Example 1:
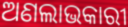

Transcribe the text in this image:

ଅଣଲାଭକାରୀ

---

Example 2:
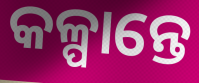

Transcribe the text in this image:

କଳ୍ପାନ୍ତେ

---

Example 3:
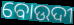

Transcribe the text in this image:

ବୋଉଦୀ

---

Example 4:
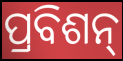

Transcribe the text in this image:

ପ୍ରବିଶନ୍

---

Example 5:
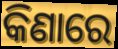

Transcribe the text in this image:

କିଣାରେ